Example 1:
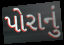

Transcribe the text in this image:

પોરાનું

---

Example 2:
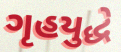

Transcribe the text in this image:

ગૃહયુદ્ધે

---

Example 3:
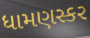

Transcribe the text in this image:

ધામણસ્કર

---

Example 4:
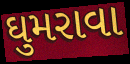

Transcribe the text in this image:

ઘુમરાવા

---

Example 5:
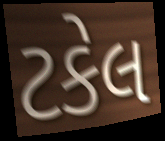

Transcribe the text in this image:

ટકેલ